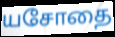
யசோதை